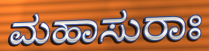
ಮಹಾಸುರಾಃ